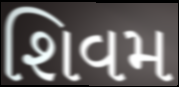
શિવમ